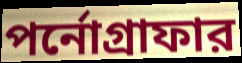
পর্নোগ্রাফার